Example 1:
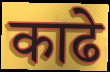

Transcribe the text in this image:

काढे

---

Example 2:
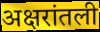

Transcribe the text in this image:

अक्षरांतली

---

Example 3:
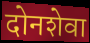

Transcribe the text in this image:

दोनशेवा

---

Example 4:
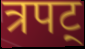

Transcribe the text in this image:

त्रपट्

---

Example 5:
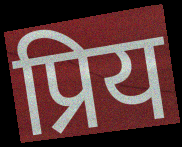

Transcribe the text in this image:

प्रिय